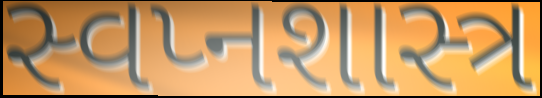
સ્વપ્નશાસ્ત્ર